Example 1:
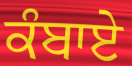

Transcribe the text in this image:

ਕੰਬਾਏ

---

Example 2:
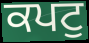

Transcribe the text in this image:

ਕਪਟੁ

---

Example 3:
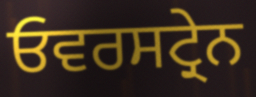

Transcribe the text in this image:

ਓਵਰਸਟ੍ਰੇਨ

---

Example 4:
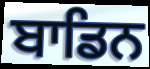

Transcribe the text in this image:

ਬਾਡਿਨ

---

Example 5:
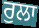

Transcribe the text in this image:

ਰੁਲਾ